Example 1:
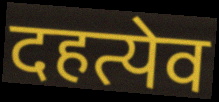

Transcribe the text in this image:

दहत्येव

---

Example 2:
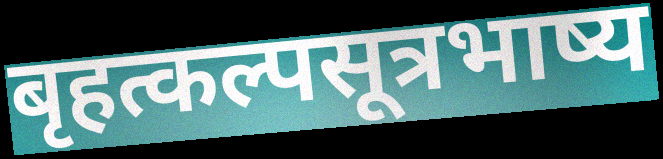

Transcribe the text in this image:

बृहत्कल्पसूत्रभाष्य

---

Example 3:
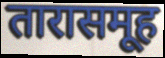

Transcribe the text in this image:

तारासमूह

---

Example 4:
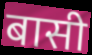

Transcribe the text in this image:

बासी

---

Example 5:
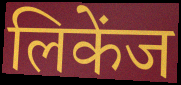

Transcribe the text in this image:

लिकेंज